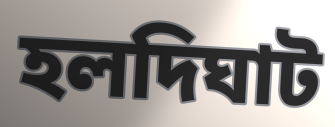
হলদিঘাট